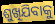
ଶୁଖିଯିବାକୁ